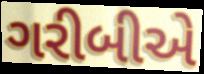
ગરીબીએ